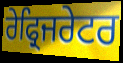
ਰੇਫ੍ਰਿਜਰੇਟਰ